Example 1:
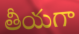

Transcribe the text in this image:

తీయగా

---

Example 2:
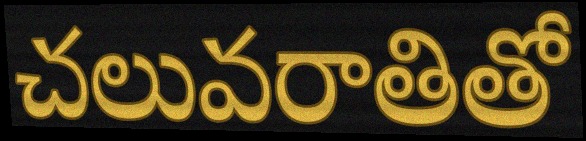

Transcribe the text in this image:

చలువరాతితో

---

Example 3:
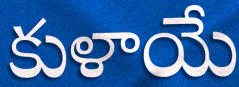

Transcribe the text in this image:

కుళాయే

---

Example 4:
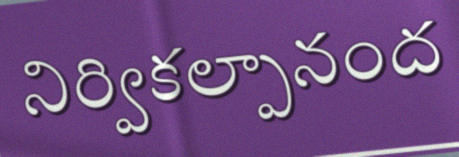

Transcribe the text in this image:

నిర్వికల్పానంద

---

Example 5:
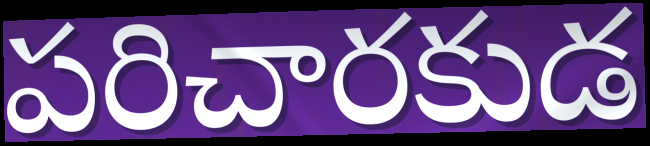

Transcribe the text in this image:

పరిచారకుడ